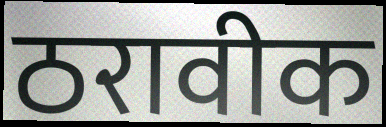
ठरावीक